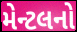
મેન્ટલનો